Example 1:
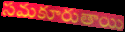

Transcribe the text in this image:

సమకూరుతాయి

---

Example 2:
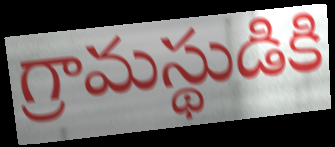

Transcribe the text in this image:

గ్రామస్థుడికి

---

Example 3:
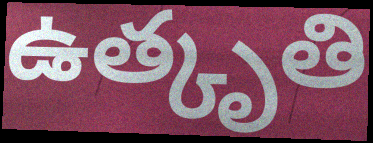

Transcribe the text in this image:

ఉత్కృతి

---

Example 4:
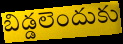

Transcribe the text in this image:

బిడ్డలెందుకు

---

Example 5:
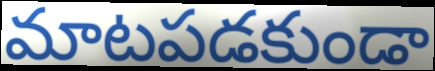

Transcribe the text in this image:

మాటపడకుండా